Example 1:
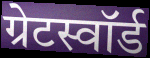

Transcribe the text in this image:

ग्रेटस्वॉर्ड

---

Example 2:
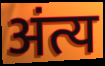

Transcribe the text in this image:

अंत्य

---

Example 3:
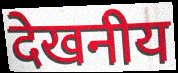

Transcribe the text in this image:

देखनीय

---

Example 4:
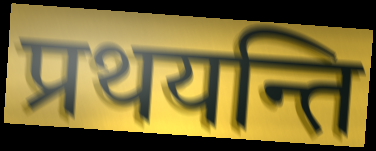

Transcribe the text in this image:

प्रथयन्ति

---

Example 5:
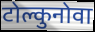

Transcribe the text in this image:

टोल्कुनोवा